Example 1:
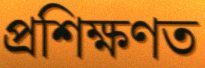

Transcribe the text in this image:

প্ৰশিক্ষণত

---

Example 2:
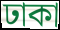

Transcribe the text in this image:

ঢাকা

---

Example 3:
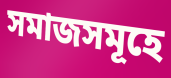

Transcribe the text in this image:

সমাজসমূহে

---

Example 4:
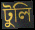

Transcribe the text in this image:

টুলি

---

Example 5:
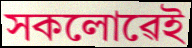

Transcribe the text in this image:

সকলোৱেই